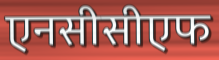
एनसीसीएफ